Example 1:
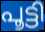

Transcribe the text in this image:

പൂട്ടി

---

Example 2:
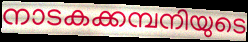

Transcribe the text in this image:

നാടകക്കമ്പനിയുടെ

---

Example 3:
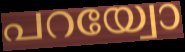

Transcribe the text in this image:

പറയ്വോ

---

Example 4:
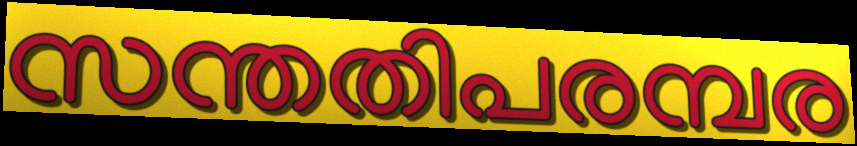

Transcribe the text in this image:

സന്തതിപരമ്പര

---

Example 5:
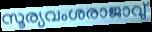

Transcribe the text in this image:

സൂര്യവംശരാജാവു്